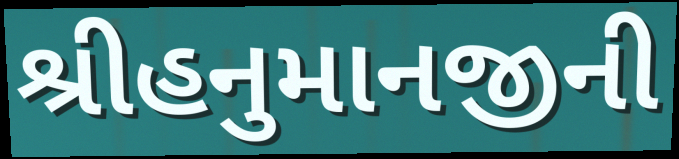
શ્રીહનુમાનજીની